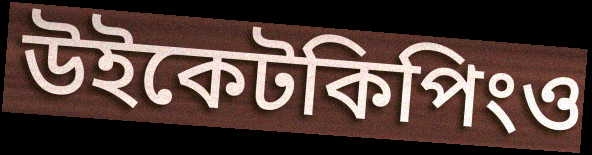
উইকেটকিপিংও